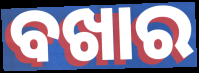
ବଖାର